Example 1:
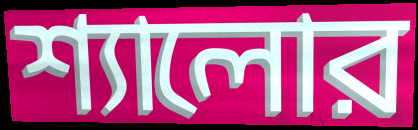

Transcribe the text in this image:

শ্যালোর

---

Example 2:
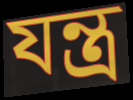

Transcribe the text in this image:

যন্ত্র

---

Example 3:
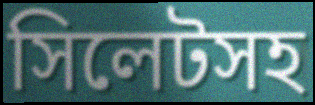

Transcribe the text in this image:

সিলেটসহ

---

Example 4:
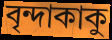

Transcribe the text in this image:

বৃন্দাকাকু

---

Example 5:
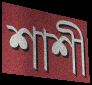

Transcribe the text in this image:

শাশী